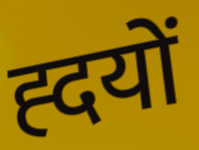
ह्दयों